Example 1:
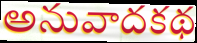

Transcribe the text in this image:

అనువాదకథ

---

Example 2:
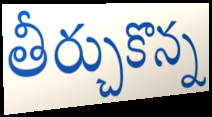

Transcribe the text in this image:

తీర్చుకొన్న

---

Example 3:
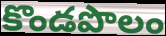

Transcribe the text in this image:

కొండపొలం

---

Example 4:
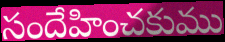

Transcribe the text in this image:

సందేహించకుము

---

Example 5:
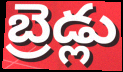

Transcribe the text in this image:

బ్రెడ్లు